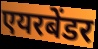
एयरबेंडर